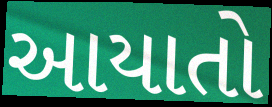
આયાતો